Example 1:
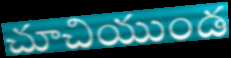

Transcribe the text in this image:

చూచియుండ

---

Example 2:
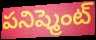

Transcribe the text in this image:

పనిష్మెంట్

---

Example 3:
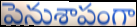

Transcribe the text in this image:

పెనుశాపంగా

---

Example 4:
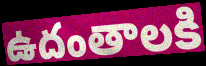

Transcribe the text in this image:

ఉదంతాలకి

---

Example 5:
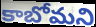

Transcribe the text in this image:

కాబోమని